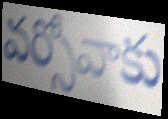
వర్సోవాకు